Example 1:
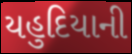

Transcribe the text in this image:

યહુદિયાની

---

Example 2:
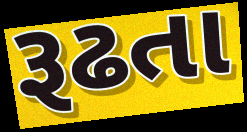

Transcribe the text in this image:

રૂઢતા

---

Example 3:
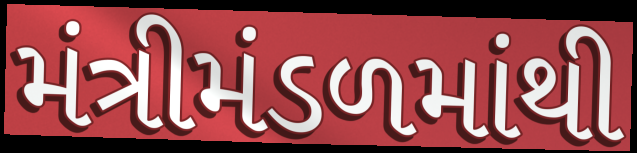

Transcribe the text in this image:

મંત્રીમંડળમાંથી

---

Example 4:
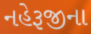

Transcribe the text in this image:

નહેરૂજીના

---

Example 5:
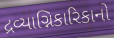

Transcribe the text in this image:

દ્રવ્યાગ્નિકારિકાનો